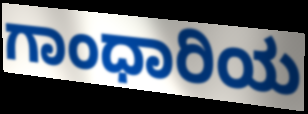
ಗಾಂಧಾರಿಯ